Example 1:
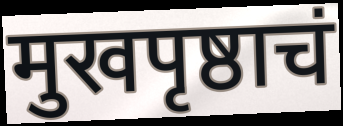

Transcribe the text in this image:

मुखपृष्ठाचं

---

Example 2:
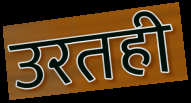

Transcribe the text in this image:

उरतही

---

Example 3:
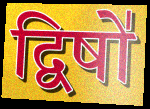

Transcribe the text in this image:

द्विषो॑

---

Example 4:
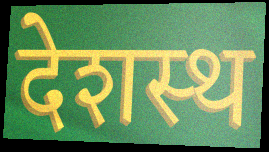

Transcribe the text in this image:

देशस्थ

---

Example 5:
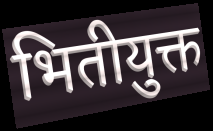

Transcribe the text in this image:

भितीयुक्त